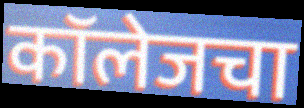
कॉलेजचा